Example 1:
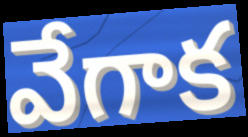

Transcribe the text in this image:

వేగాక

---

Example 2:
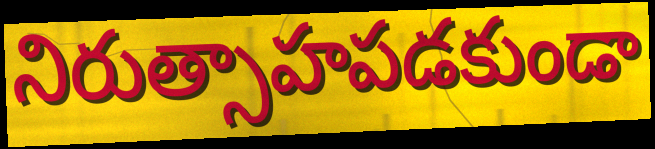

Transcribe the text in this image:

నిరుత్సాహపడకుండా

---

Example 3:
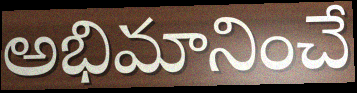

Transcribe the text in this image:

అభిమానించే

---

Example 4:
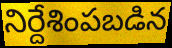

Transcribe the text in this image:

నిర్దేశింపబడిన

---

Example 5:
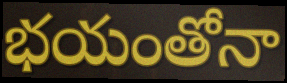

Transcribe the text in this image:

భయంతోనా